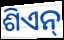
ଶିଏନ୍